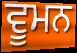
ਵੂਮਨ